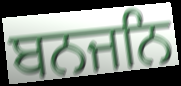
ਬਨਜਨਿ